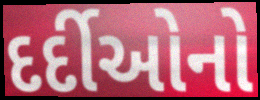
દર્દીઓનો